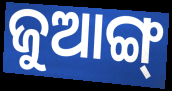
ଜୁଆଙ୍ଗ୍